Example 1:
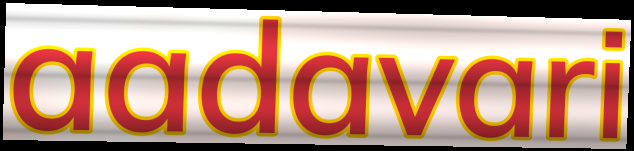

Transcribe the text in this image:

aadavari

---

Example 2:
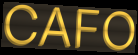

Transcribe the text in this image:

CAFO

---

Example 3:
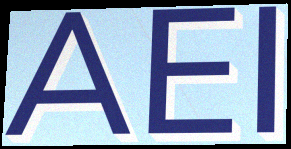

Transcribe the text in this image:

AEI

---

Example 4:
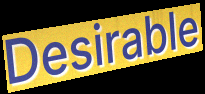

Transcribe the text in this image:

Desirable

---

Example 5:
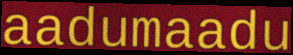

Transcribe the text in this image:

aadumaadu